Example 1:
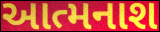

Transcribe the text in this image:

આત્મનાશ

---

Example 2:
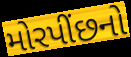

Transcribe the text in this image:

મોરપીંછનો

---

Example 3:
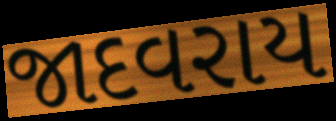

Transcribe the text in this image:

જાદવરાય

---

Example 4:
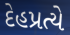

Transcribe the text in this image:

દેહપ્રત્યે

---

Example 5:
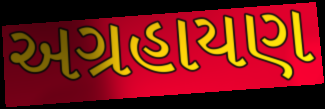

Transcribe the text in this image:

અગ્રહાયણ